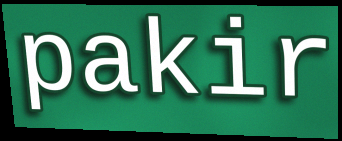
pakir